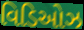
વિડિઓઝ